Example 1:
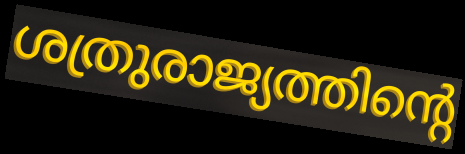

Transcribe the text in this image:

ശത്രുരാജ്യത്തിന്റെ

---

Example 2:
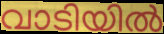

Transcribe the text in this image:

വാടിയിൽ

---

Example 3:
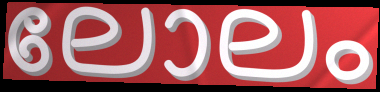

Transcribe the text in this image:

ലോലം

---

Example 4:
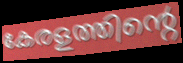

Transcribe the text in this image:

കേരളത്തിന്റെ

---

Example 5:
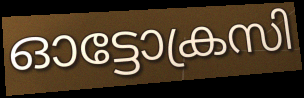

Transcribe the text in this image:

ഓട്ടോക്രസി